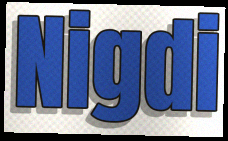
Nigdi